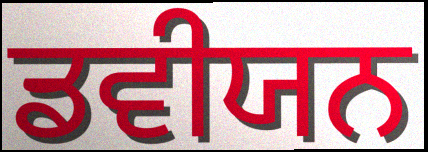
ਡਵੀਯਨ